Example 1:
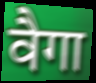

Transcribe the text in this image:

वैगा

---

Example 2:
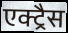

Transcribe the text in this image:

एक्ट्रैस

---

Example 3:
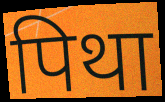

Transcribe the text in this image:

पिथा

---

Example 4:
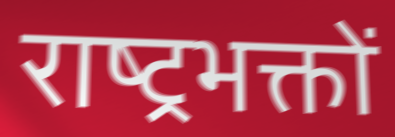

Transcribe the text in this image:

राष्ट्रभक्तों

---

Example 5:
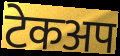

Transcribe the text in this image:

टेकअप